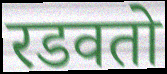
रडवतो